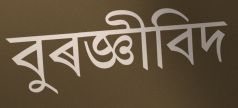
বুৰজ্ঞীবিদ